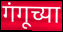
गंगूच्या